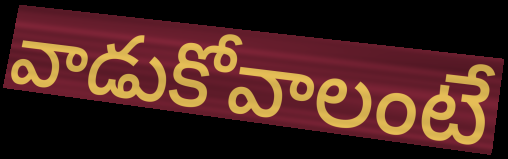
వాడుకోవాలంటే